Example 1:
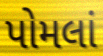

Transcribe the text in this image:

પોમલાં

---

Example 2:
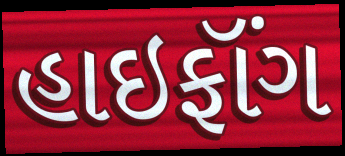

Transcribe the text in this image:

હાઇફૉંગ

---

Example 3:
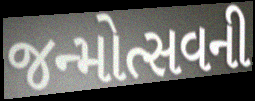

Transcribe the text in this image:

જન્મોત્સવની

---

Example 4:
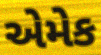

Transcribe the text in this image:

એમેક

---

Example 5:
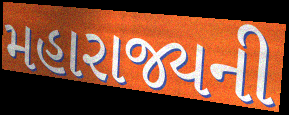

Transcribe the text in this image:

મહારાજ્યની